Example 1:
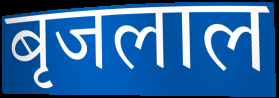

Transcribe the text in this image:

बृजलाल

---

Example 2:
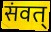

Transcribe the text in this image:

संवत्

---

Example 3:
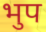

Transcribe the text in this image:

भुप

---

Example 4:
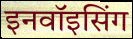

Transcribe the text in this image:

इनवॉइसिंग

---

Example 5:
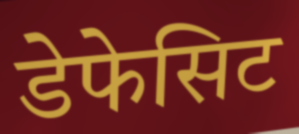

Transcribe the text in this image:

डेफेसिट